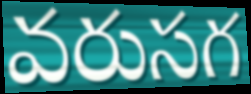
వరుసగ